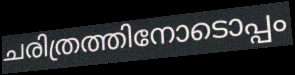
ചരിത്രത്തിനോടൊപ്പം